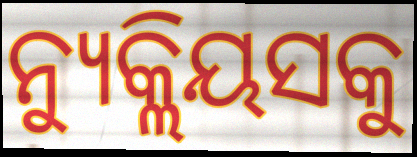
ନ୍ୟୁକ୍ଲିୟସକୁ